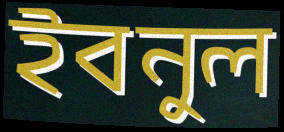
ইবনুল